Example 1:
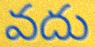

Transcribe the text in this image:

వదు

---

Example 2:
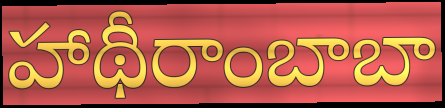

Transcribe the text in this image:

హాథీరాంబాబా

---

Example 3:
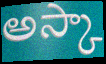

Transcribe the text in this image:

అస్కా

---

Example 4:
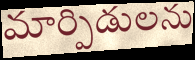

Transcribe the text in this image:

మార్పిడులను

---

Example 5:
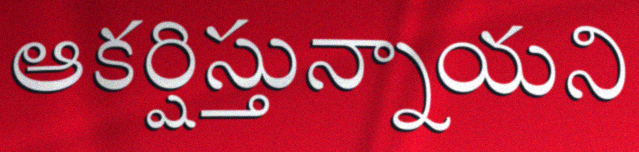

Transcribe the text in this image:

ఆకర్షిస్తున్నాయని